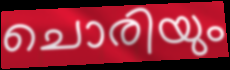
ചൊരിയും